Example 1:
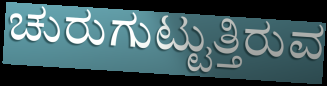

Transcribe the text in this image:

ಚುರುಗುಟ್ಟುತ್ತಿರುವ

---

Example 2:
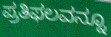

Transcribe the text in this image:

ಪ್ರತಿಫಲವನ್ನೂ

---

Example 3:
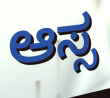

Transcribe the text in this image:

ಆಸ್ಸ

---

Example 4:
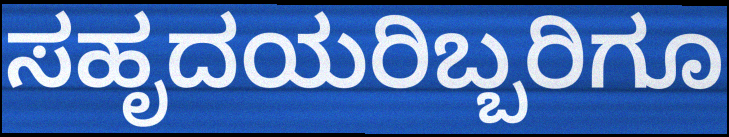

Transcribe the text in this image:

ಸಹೃದಯರಿಬ್ಬರಿಗೂ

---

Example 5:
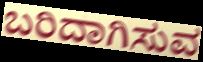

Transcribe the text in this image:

ಬರಿದಾಗಿಸುವ